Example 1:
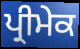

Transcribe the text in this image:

ਪ੍ਰੀਮੇਕ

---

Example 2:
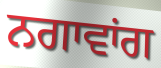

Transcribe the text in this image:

ਨਗਾਵਾਂਗ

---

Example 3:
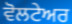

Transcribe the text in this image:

ਵੋਲਟੇਅਰ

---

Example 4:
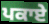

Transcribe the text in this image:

ਪਕਾਏ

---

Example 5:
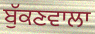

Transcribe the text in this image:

ਬੁੱਕਣਵਾਲਾ